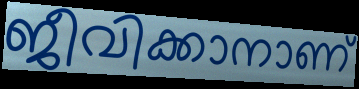
ജീവിക്കാനാണ്